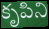
కృపిని